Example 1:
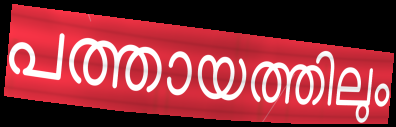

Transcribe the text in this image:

പത്തായത്തിലും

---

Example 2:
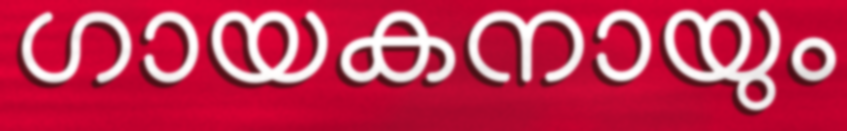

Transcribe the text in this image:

ഗായകനായും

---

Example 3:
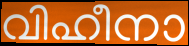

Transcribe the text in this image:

വിഹീനാ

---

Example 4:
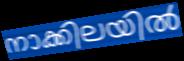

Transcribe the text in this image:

നാക്കിലയിൽ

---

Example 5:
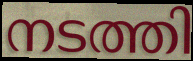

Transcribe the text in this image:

നടത്തി